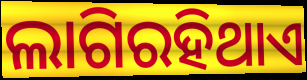
ଲାଗିରହିଥାଏ